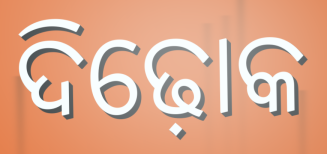
ଦିଢ଼ୋକ